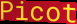
Picot